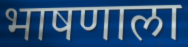
भाषणाला